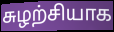
சுழற்சியாக